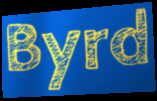
Byrd